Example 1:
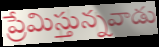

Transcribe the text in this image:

ప్రేమిస్తున్నవాడు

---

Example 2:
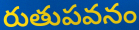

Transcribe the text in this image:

రుతుపవనం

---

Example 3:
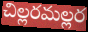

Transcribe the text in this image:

చిల్లరమల్లర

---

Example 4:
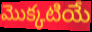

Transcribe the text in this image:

మొక్కటియే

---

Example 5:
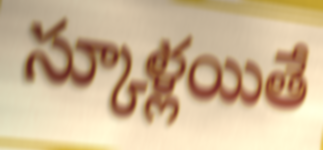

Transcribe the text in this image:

స్కూళ్లయితే